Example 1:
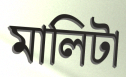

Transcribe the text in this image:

মালিটা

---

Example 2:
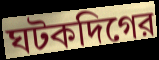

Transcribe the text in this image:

ঘটকদিগের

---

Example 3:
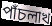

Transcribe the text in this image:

পাঁচলাখ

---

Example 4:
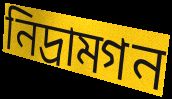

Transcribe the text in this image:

নিদ্রামগন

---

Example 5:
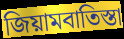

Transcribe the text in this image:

জিয়ামবাতিস্তা